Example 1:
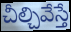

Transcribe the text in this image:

చీల్చివేస్తే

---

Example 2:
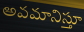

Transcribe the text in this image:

అవమానిస్తూ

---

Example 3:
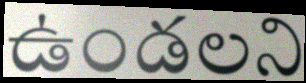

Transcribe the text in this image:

ఉండలని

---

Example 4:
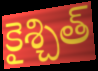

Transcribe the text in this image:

కైశ్చిత్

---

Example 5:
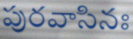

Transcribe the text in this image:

పురవాసినః